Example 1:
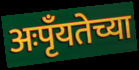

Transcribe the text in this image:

अःपृँयतेच्या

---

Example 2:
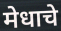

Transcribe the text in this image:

मेधाचे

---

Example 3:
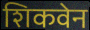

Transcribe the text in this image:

शिकवेन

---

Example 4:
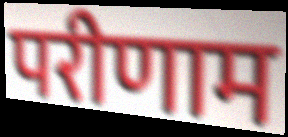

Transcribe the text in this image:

परीणाम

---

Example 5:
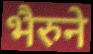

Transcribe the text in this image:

भैरुने